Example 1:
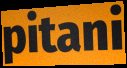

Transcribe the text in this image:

pitani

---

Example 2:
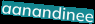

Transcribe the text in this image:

aanandinee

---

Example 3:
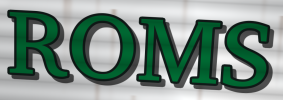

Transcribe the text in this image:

ROMS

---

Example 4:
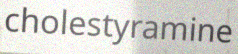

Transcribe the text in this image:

cholestyramine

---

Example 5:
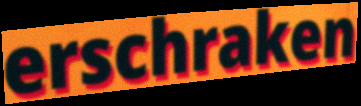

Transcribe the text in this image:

erschraken